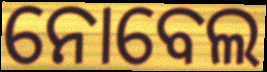
ନୋବେଲ